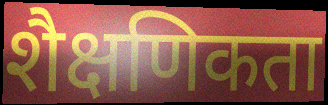
शैक्षणिकता